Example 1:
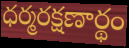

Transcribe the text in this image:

ధర్మరక్షణార్థం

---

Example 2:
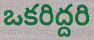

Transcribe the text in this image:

ఒకరిద్దరి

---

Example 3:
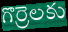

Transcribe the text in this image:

గొర్రెలకు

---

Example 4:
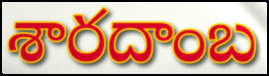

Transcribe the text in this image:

శారదాంబ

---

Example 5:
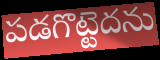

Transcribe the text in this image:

పడగొట్టెదను